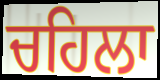
ਚਹਿਲਾ